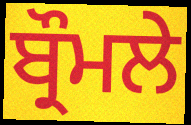
ਬ੍ਰੌਮਲੇ